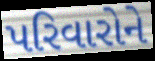
પરિવારોને